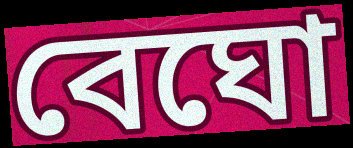
বেঘো